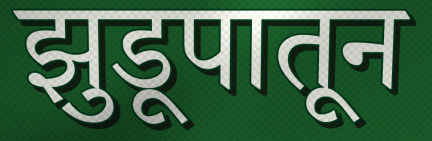
झुडूपातून